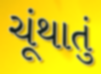
ચૂંથાતું